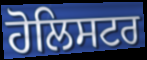
ਹੋਲਿਸਟਰ